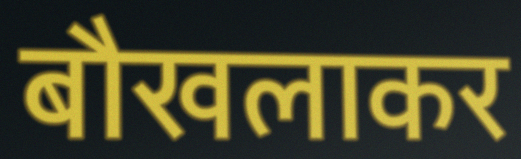
बौखलाकर